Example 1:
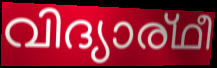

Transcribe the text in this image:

വിദ്യാര്ഥീ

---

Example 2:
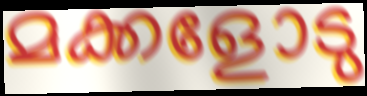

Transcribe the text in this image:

മക്കളോടു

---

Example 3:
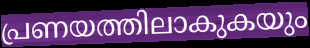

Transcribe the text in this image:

പ്രണയത്തിലാകുകയും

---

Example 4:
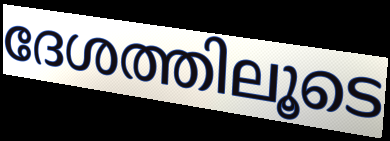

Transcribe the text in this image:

ദേശത്തിലൂടെ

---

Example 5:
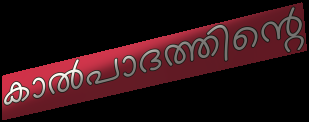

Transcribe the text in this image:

കാൽപാദത്തിന്റെ